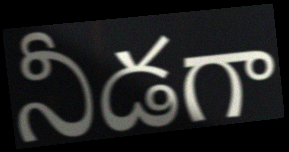
నీడగా